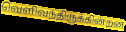
வெளிவந்திருக்கின்றன